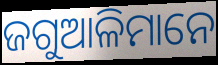
ଜଗୁଆଳିମାନେ